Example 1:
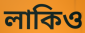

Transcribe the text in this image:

লাকিও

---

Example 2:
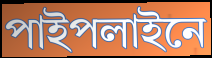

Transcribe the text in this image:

পাইপলাইনে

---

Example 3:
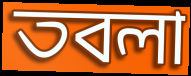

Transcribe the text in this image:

তবলা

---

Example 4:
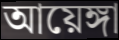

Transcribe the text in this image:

আয়েঙ্গা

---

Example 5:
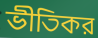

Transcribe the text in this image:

ভীতিকর